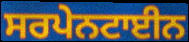
ਸਰਪੇਨਟਾਈਨ